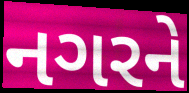
નગરને